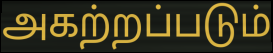
அகற்றப்படும்